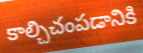
కాల్చిచంపడానికి